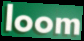
loom